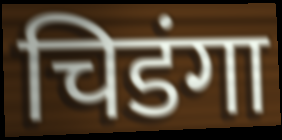
चिडंगा